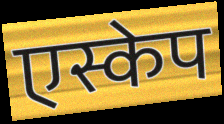
एस्केप